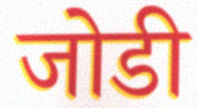
जोडी